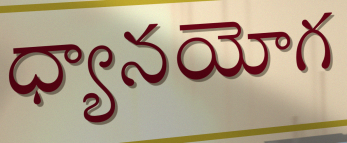
ధ్యానయోగ